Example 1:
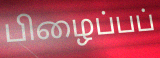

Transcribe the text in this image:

பிழைப்பப்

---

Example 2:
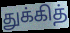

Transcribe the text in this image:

துக்கித்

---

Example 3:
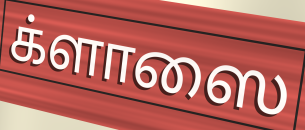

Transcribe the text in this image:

க்ளாஸை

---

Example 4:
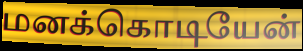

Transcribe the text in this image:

மனக்கொடியேன்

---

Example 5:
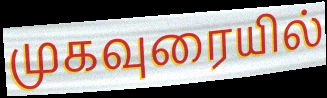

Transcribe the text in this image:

முகவுரையில்